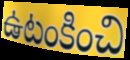
ఉటంకించి